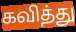
கவித்து